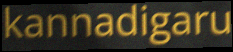
kannadigaru